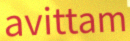
avittam